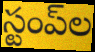
స్టంప్‌ల